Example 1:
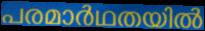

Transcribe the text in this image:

പരമാർഥതയിൽ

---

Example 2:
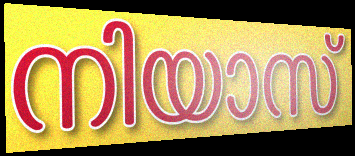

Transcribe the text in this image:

നിയാസ്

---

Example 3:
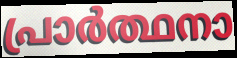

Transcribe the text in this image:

പ്രാർത്ഥനാ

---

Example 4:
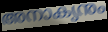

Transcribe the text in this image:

അനാക്യനും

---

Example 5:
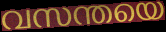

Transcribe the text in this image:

വസന്തയെ